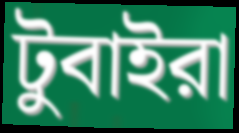
টুবাইরা